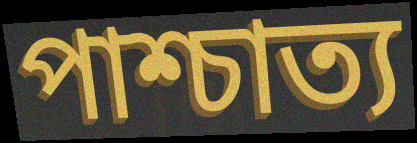
পাশ্চাত্য